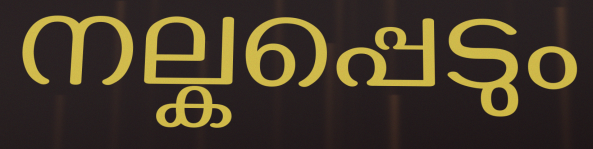
നല്കപ്പെടും